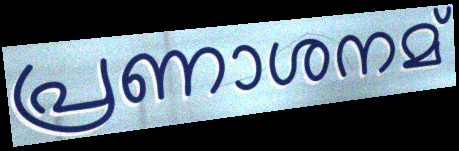
പ്രണാശനമ്